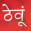
ठेवूं